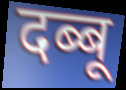
दब्बू